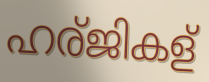
ഹര്ജികള്